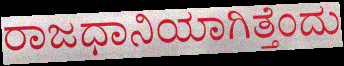
ರಾಜಧಾನಿಯಾಗಿತ್ತೆಂದು